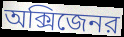
অক্সিজেনর